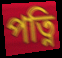
পত্নি